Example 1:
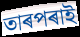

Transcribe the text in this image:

তাৰপৰাই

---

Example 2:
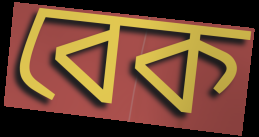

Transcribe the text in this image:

বেক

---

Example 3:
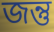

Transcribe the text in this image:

জন্তু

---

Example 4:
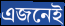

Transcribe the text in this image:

এজনেই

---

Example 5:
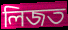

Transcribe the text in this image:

লিজত